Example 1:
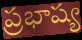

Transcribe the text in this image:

ప్రభాష్య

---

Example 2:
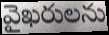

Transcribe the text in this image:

వైఖరులను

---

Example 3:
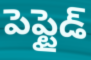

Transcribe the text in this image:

పెప్టైడ్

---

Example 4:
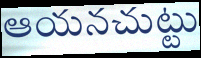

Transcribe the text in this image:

ఆయనచుట్టు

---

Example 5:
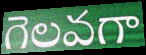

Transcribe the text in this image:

గెలవగా